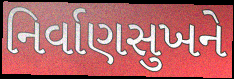
નિર્વાણસુખને